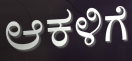
ಆಕಳಿಗೆ